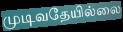
முடிவதேயில்லை